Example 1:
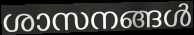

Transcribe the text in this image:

ശാസനങ്ങൾ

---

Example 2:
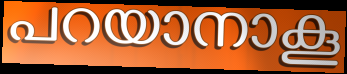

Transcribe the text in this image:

പറയാനാകൂ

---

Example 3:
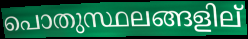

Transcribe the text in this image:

പൊതുസ്ഥലങ്ങളില്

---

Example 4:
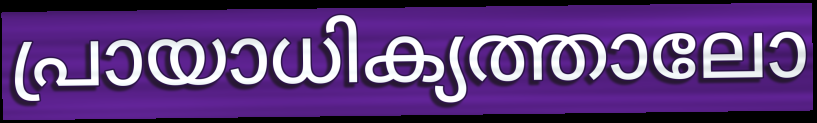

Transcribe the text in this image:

പ്രായാധിക്യത്താലോ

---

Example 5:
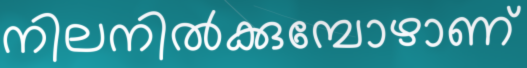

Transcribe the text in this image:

നിലനിൽക്കുമ്പോഴാണ്